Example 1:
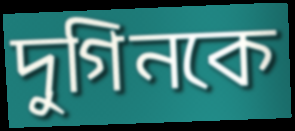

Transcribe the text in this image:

দুগিনকে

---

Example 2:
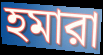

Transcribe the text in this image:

হমারা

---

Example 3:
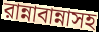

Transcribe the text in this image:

রান্নাবান্নাসহ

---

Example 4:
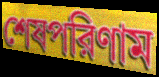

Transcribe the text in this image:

শেষপরিণাম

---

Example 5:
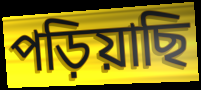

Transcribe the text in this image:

পড়িয়াছি